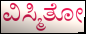
ವಿಸ್ಮಿತೋ